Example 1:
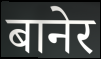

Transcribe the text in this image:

बानेर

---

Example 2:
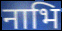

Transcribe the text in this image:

नाभि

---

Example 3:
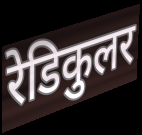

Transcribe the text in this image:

रेडिकुलर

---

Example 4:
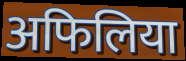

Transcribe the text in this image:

अफिलिया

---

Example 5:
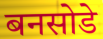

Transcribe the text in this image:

बनसोडे